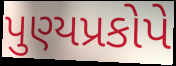
પુણ્યપ્રકોપે